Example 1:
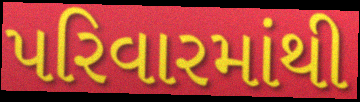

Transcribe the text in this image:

પરિવારમાંથી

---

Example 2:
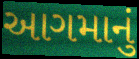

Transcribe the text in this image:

આગમાનું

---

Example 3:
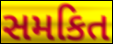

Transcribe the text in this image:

સમકિત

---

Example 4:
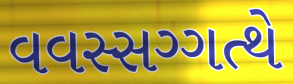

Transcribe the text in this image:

વવસ્સગ્ગત્થે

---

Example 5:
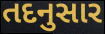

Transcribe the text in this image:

તદનુસાર